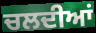
ਚਲਦੀਆਂ